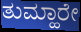
ತುಮ್ಹಾರೇ